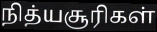
நித்யசூரிகள்